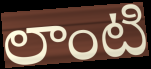
లాంటి